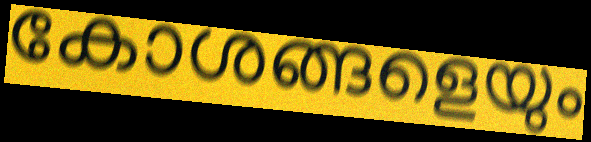
കോശങ്ങളെയും